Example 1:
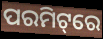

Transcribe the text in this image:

ପରମିଟ୍‌ରେ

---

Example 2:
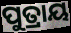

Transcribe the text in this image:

ପୁତ୍ରାୟ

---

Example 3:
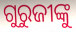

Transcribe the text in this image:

ଗୁରୁଜୀଙ୍କୁ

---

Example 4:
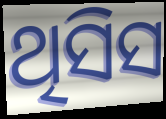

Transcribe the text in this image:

ଥିସିସ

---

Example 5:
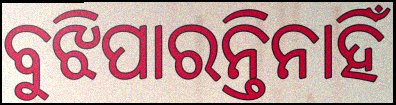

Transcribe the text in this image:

ବୁଝିପାରନ୍ତିନାହିଁ